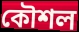
কৌশল